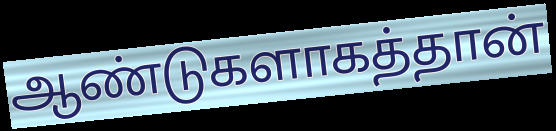
ஆண்டுகளாகத்தான்